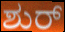
ಶುರ್